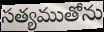
సత్యముతోను